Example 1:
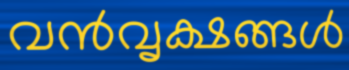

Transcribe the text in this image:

വൻവൃക്ഷങ്ങൾ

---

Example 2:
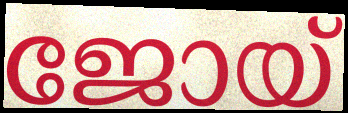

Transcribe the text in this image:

ജോയ്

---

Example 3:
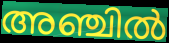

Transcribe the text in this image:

അഞ്ചിൽ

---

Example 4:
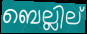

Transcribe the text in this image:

ബെല്ലില്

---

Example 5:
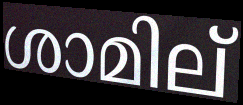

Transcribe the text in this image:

ശാമില്